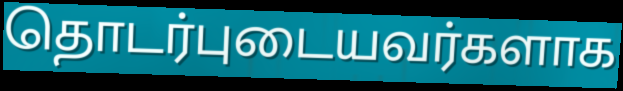
தொடர்புடையவர்களாக